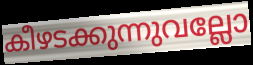
കീഴടക്കുന്നുവല്ലോ